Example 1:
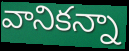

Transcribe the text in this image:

వానికన్నా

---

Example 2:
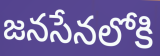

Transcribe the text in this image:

జనసేనలోకి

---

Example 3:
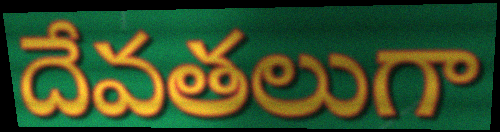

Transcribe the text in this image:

దేవతలుగా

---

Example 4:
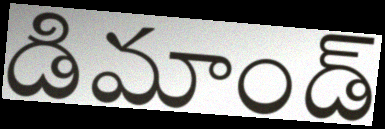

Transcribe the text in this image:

డిమాండ్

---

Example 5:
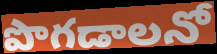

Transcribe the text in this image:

పొగడాలనో